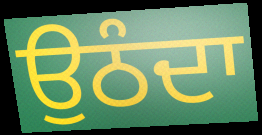
ਉਠੰਦਾ